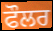
ਫੌਲਰ